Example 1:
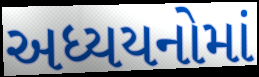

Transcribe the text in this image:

અધ્યયનોમાં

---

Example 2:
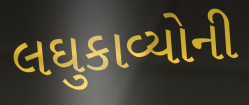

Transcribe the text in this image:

લઘુકાવ્યોની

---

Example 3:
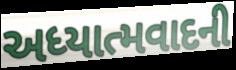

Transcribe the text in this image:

અધ્યાત્મવાદની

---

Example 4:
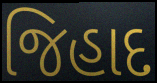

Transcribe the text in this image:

જિહાદ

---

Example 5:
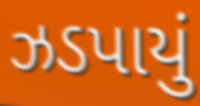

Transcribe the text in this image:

ઝડપાયું